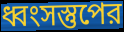
ধ্বংসস্তুপের